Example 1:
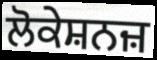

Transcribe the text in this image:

ਲੋਕੇਸ਼ਨਜ਼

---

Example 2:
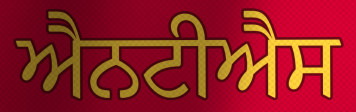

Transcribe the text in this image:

ਐਨਟੀਐਸ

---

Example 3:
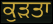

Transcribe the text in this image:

ਕੁੜਤਾ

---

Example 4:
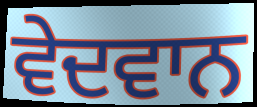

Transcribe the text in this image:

ਵੇਦਵਾਨ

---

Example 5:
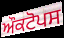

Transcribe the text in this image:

ਔਕਟੋਪਸ